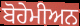
ਬੋਹੇਮੀਅਨ